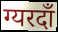
ग्यरदाँ